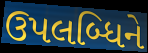
ઉપલબ્ધિને